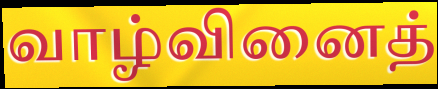
வாழ்வினைத்